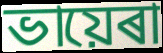
ভায়েৰা